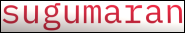
sugumaran